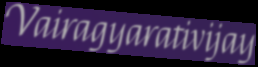
Vairagyarativijay